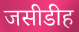
जसीडीह